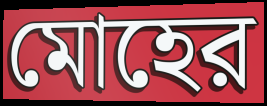
মোহের